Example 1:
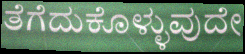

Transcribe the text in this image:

ತೆಗೆದುಕೊಳ್ಳುವುದೇ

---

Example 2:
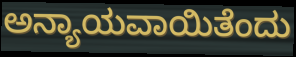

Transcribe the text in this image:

ಅನ್ಯಾಯವಾಯಿತೆಂದು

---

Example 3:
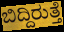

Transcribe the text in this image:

ಬಿದ್ದಿರುತ್ತೆ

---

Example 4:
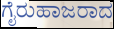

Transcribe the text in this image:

ಗೈರುಹಾಜರಾದ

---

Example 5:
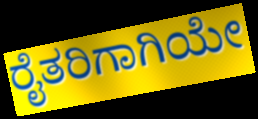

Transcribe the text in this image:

ರೈತರಿಗಾಗಿಯೇ